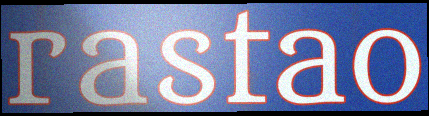
rastao